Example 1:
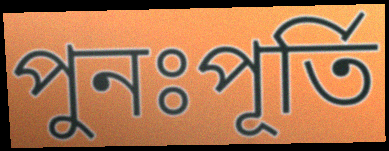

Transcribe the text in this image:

পুনঃপূৰ্তি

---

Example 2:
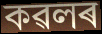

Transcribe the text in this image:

কৱলৰ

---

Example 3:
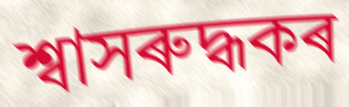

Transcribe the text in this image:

শ্বাসৰুদ্ধকৰ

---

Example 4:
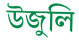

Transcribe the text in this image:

উজুলি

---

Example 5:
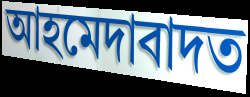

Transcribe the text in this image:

আহমেদাবাদত